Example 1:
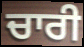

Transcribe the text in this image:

ਚਾਰੀ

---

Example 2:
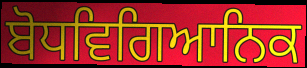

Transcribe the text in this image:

ਬੋਧਵਿਗਿਆਨਿਕ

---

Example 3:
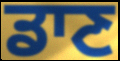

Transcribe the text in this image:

ਡਾਣ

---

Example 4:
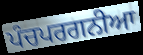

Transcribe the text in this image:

ਪੰਚਪਰਗਨੀਆ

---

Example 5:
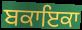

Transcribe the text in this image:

ਬਕਾਇਕਾ